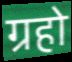
ग्रहो